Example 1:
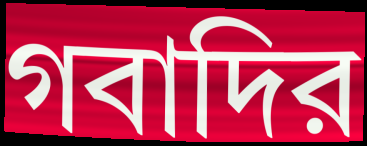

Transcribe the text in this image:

গবাদির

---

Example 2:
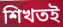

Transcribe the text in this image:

শিখতই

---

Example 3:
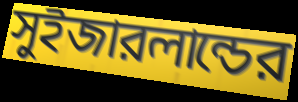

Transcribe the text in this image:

সুইজারলান্ডের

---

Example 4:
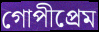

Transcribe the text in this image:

গোপীপ্রেম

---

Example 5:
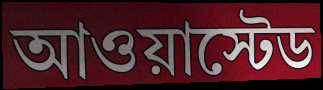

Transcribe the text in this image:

আওয়াস্টেড